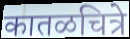
कातळचित्रे